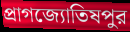
প্রাগজ্যোতিষপুর